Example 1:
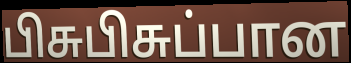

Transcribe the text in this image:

பிசுபிசுப்பான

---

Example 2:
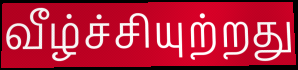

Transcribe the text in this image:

வீழ்ச்சியுற்றது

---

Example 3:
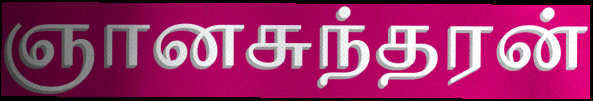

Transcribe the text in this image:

ஞானசுந்தரன்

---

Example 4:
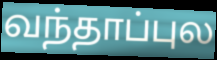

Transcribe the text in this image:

வந்தாப்புல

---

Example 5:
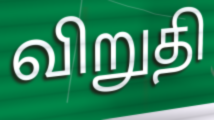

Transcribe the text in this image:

விறுதி